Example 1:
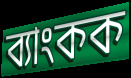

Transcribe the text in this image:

ব্যাংকক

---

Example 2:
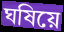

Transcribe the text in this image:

ঘষিয়ে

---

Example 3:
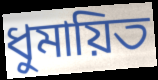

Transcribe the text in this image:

ধুমায়িত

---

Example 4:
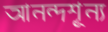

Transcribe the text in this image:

আনন্দশূন্য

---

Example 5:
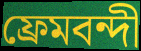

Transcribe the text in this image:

ফ্রেমবন্দী